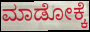
ಮಾಡೋಕ್ಕೆ